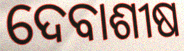
ଦେବାଶୀଷ